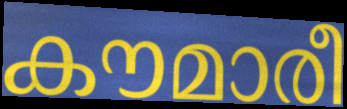
കൗമാരീ